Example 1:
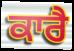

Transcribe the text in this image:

ਕਾਰੈ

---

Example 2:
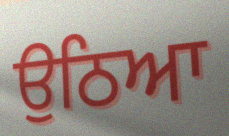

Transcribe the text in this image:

ਉਠਿਆ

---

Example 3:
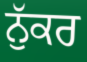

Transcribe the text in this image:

ਨੁੱਕਰ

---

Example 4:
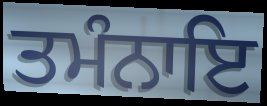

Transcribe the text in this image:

ਤਮੰਨਾਇ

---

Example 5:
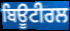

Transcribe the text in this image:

ਬਿਊਟੀਰਲ